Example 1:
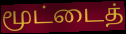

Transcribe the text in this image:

மூட்டைத்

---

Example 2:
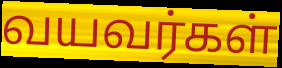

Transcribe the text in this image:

வயவர்கள்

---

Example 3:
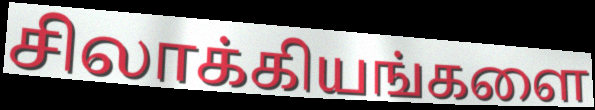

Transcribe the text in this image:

சிலாக்கியங்களை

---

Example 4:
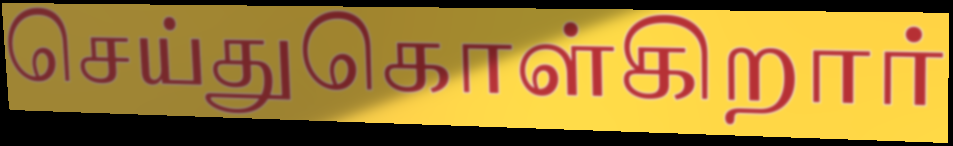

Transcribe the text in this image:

செய்துகொள்கிறார்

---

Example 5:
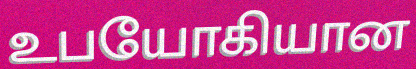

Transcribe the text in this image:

உபயோகியான